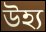
উহ্য